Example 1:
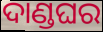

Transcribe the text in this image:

ଦାଣ୍ଡଘର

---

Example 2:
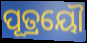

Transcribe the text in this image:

ପୂତ୍ରୟୌ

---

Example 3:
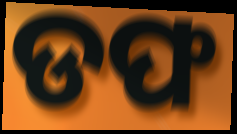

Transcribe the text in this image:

ଡଫ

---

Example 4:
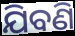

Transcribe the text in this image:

ଯିବଣି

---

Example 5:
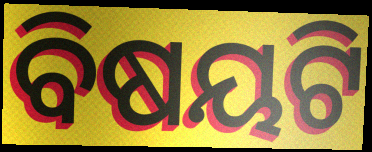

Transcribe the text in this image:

ବିଷୟଟି